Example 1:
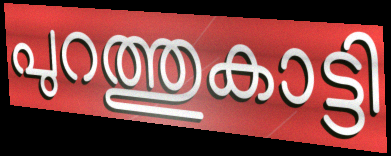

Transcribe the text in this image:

പുറത്തുകാട്ടി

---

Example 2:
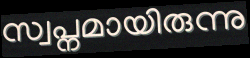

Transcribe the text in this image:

സ്വപ്നമായിരുന്നു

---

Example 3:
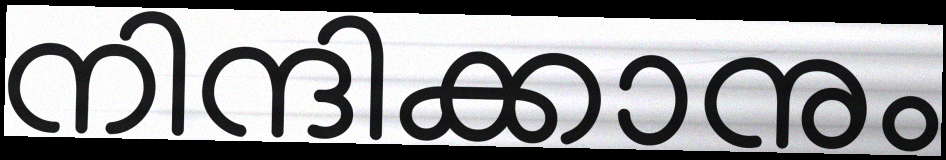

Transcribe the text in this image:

നിന്ദിക്കാനും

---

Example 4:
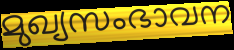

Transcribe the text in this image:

മുഖ്യസംഭാവന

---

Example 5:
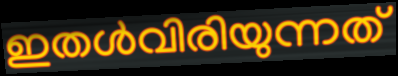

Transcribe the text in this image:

ഇതൾവിരിയുന്നത്